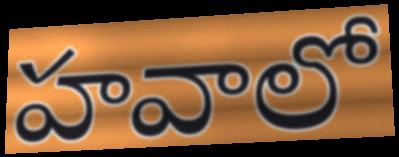
హవాలో